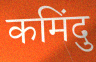
कमिंदु